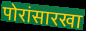
पोरांसारखा